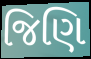
જિણિ